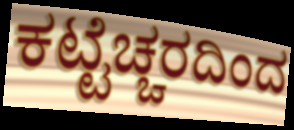
ಕಟ್ಟೆಚ್ಚರದಿಂದ